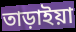
তাড়াইয়া